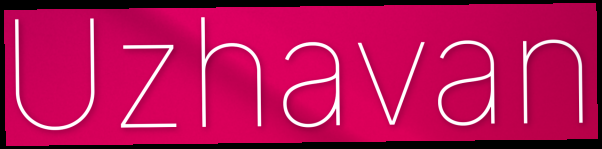
Uzhavan